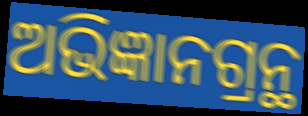
ଅଭିଜ୍ଞାନଗ୍ରନ୍ଥ